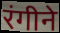
रंगीने